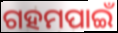
ଗହମପାଇଁ